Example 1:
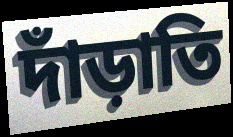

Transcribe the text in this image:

দাঁড়াতি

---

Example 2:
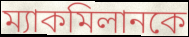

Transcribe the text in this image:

ম্যাকমিলানকে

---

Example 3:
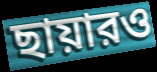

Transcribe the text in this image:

ছায়ারও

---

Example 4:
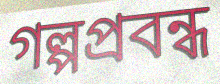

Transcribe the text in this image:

গল্পপ্রবন্ধ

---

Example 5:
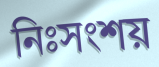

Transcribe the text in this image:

নিঃসংশয়